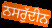
ਨਸਰੁੱਦੀਨ